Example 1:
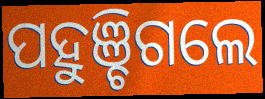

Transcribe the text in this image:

ପହୁଞ୍ଚିଗଲେ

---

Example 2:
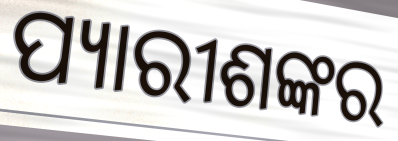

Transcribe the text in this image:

ପ୍ୟାରୀଶଙ୍କର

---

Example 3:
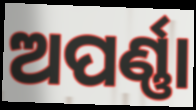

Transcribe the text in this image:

ଅପର୍ଣ୍ଣା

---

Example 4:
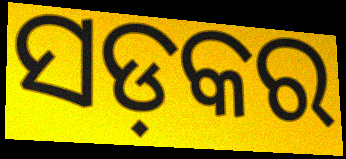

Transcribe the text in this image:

ସଡ଼କର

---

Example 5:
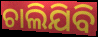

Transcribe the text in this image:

ଚାଲିଯିବି